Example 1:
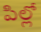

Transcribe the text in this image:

పిల్లో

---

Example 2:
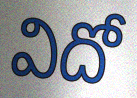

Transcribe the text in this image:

విదో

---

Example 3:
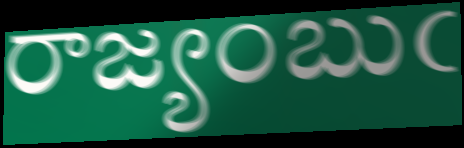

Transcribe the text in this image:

రాజ్యంబుఁ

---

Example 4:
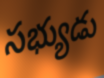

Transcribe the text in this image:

సభ్యుడు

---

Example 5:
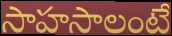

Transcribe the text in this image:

సాహసాలంటే